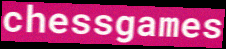
chessgames